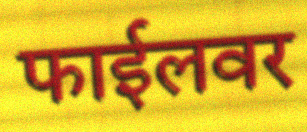
फाईलवर